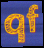
qf